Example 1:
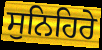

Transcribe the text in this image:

ਸੁਨਿਹਿਰੇ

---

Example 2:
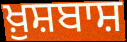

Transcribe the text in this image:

ਖ਼ੁਸ਼ਬਾਸ਼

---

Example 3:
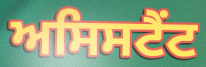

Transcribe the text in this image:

ਅਸਿਸਟੈਂਟ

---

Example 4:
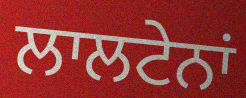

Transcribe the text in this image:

ਲਾਲਟੇਨਾਂ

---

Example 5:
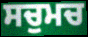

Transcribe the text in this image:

ਸਚੁਮਚ